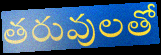
తరువులతో